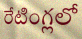
రేటింగ్లలో